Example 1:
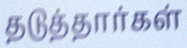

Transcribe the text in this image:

தடுத்தார்கள்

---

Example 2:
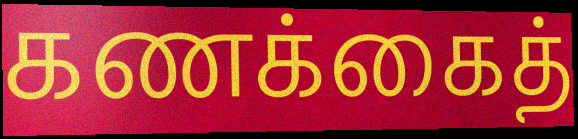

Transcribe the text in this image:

கணக்கைத்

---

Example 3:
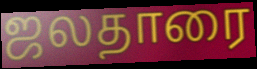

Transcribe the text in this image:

ஜலதாரை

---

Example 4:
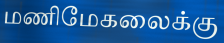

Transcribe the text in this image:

மணிமேகலைக்கு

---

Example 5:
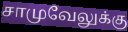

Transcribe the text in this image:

சாமுவேலுக்கு